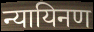
न्यायिनण